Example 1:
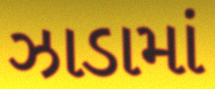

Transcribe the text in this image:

ઝાડામાં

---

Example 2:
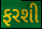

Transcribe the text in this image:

ફરશી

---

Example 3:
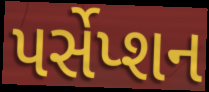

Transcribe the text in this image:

પર્સેપ્શન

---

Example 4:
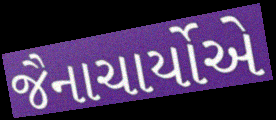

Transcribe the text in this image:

જૈનાચાર્યોએ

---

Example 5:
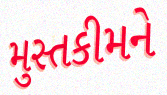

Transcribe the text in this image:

મુસ્તકીમને